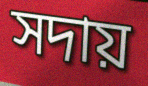
সদায়